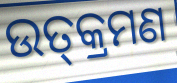
ଉତ୍‍କ୍ରମଣ